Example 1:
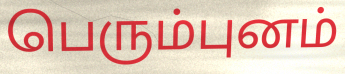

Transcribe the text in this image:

பெரும்புனம்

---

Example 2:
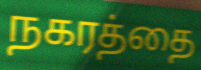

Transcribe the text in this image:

நகரத்தை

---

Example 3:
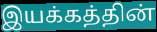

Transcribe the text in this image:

இயக்கத்தின்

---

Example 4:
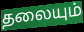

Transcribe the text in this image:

தலையும்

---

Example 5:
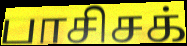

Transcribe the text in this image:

பாசிசக்